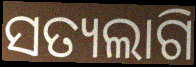
ସତ୍ୟଲାଗି